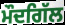
ਮੌਦਗਿੱਲ